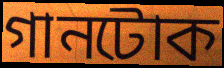
গানটোক